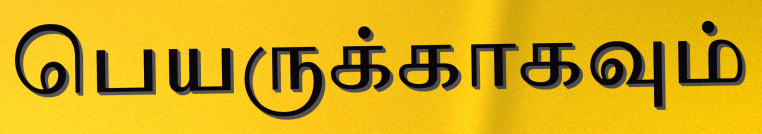
பெயருக்காகவும்